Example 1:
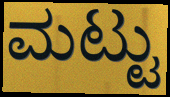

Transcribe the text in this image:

ಮಟ್ಟು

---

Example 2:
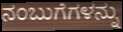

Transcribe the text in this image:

ನಂಬುಗೆಗಳನ್ನು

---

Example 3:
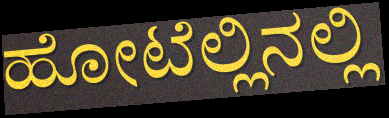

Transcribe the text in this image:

ಹೋಟೆಲ್ಲಿನಲ್ಲಿ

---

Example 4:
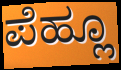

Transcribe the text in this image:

ಪೆಹ್ಲೂ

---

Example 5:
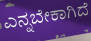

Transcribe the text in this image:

ಎನ್ನಬೇಕಾಗಿದೆ